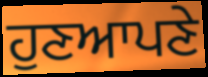
ਹੁਣਆਪਣੇ